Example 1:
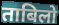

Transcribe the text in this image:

ताबिलो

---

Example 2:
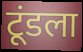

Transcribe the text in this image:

टूंडला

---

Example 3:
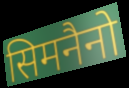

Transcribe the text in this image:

सिमनैनो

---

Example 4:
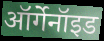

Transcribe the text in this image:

ऑर्गेनॉइड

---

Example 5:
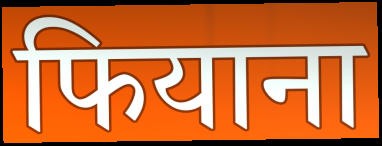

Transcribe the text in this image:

फियाना